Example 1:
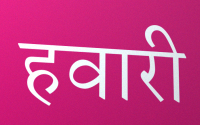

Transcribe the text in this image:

हवारी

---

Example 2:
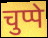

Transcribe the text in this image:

चुप्पे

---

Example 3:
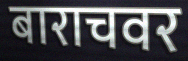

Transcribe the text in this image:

बाराचवर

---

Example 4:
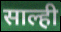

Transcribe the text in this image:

साल्ही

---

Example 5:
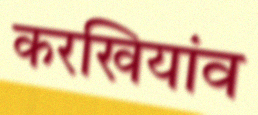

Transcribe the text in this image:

करखियांव